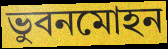
ভুবনমোহন